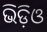
ଭିଡ଼ିଓ